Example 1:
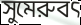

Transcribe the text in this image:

সুমেরুবৎ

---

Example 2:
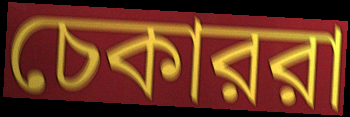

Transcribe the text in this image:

চেকাররা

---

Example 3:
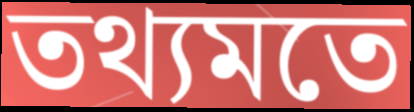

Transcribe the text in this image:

তথ্যমতে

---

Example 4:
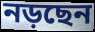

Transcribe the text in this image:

নড়ছেন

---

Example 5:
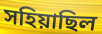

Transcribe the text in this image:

সহিয়াছিল